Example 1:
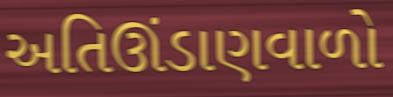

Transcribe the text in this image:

અતિઊંડાણવાળો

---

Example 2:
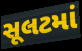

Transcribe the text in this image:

સૂલટમાં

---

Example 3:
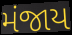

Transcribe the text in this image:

મંજાય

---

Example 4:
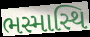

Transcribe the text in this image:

ભસ્માસ્થિ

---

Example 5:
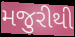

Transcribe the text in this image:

મજુરીથી